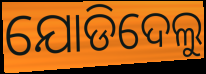
ଯୋଡିଦେଲୁ